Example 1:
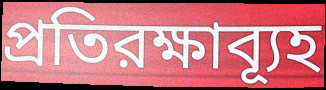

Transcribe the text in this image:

প্রতিরক্ষাব্যূহ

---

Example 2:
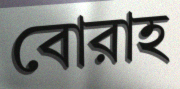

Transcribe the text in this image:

বোরাহ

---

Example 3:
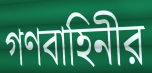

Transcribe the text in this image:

গণবাহিনীর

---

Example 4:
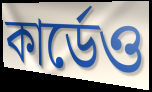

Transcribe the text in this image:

কার্ডেও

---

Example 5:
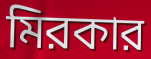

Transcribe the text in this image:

মিরকার